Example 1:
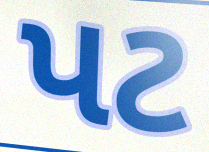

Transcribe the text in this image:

પટ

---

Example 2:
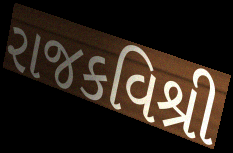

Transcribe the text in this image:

રાજકવિશ્રી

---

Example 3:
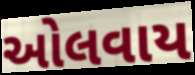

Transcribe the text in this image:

ઓલવાય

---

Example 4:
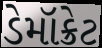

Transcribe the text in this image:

ડેમૉક્રેટ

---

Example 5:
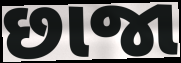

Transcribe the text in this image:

છાજા